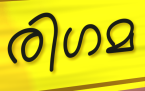
രിഗമ